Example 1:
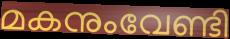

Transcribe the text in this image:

മകനുംവേണ്ടി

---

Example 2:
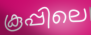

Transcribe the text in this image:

കൂപ്പിലെ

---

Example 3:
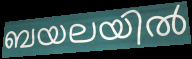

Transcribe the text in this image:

ബയലയിൽ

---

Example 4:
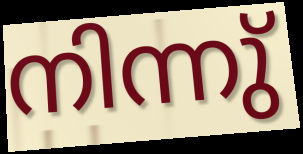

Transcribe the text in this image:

നിന്നു്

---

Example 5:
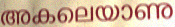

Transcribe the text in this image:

അകലെയാണു